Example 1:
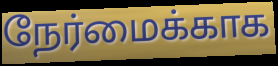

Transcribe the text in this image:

நேர்மைக்காக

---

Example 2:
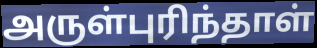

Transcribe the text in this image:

அருள்புரிந்தாள்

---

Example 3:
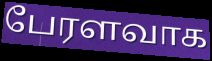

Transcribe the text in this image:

பேரளவாக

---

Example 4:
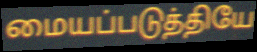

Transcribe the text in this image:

மையப்படுத்தியே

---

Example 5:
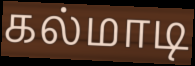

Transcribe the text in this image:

கல்மாடி